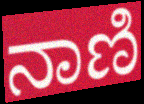
ನಾಣಿ